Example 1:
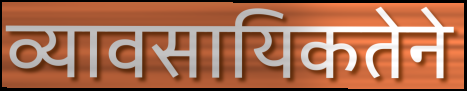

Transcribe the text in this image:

व्यावसायिकतेने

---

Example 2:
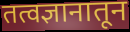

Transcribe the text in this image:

तत्वज्ञानातून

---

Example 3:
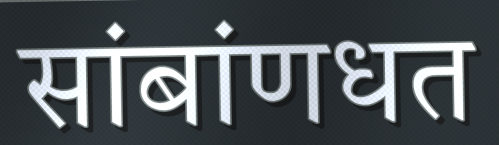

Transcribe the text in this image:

सांबांणधत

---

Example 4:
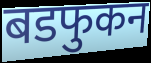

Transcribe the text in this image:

बडफुकन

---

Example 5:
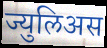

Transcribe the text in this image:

ज्युलिअस